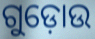
ଗୁଡ଼ୋଉ